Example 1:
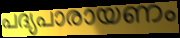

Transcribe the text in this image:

പദ്യപാരായണം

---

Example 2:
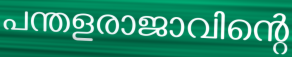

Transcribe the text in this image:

പന്തളരാജാവിന്റെ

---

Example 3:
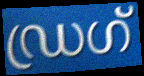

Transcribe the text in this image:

ഡ്രഗ്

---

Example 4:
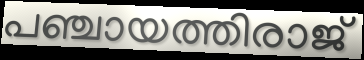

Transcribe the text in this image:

പഞ്ചായത്തിരാജ്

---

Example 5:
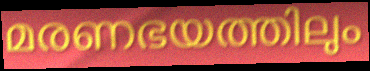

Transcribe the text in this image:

മരണഭയത്തിലും